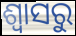
ଶ୍ୱାସରୁ